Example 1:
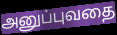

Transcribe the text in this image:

அனுப்புவதை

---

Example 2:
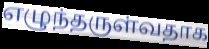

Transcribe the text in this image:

எழுந்தருள்வதாக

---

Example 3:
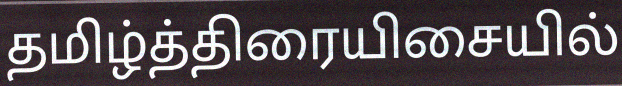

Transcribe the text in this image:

தமிழ்த்திரையிசையில்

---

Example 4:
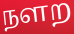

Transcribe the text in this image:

நளற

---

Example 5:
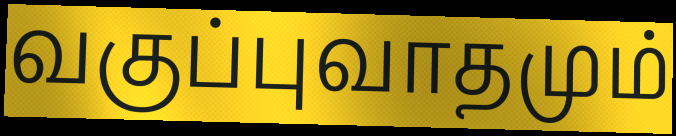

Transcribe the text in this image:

வகுப்புவாதமும்